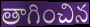
తాగించిన